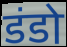
डंडो